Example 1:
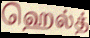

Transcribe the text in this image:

ஹெல்த்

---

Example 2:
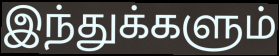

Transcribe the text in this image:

இந்துக்களும்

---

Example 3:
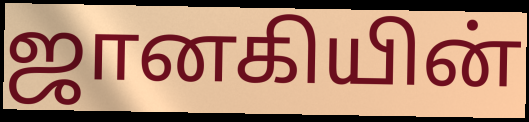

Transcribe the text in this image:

ஜானகியின்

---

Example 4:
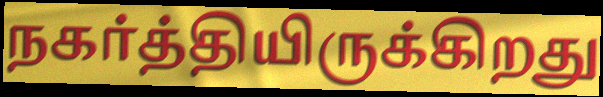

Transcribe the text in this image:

நகர்த்தியிருக்கிறது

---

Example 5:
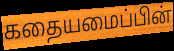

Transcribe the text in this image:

கதையமைப்பின்